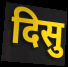
दिसु